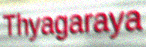
Thyagaraya